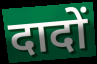
दादों